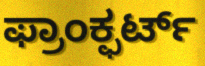
ಫ್ರಾಂಕ್ಫರ್ಟ್